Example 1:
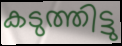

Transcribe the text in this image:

കടുത്തിട്ടു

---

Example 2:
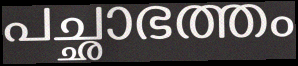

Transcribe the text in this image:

പച്ഛാഭത്തം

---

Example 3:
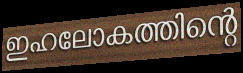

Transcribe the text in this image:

ഇഹലോകത്തിന്റെ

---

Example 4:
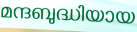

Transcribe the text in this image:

മന്ദബുദ്ധിയായ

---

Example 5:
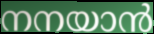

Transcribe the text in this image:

നനയാൻ